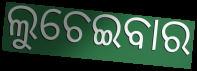
ଲୁଚେଇବାର